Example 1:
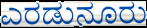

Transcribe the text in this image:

ಎರಡುನೂರು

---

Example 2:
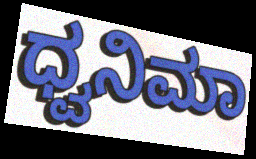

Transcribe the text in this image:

ಧ್ವನಿಮಾ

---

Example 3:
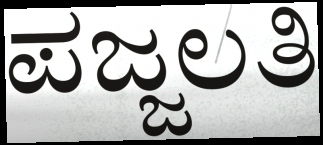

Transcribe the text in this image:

ಪಜ್ಜಲತಿ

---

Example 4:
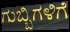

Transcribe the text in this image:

ಗುಬ್ಬಿಗಳಿಗೆ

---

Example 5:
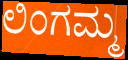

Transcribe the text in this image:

ಲಿಂಗಮ್ಮ